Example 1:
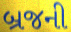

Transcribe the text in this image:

બ્રજની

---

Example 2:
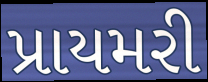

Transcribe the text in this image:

પ્રાયમરી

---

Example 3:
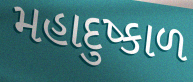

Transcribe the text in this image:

મહાદુષ્કાળ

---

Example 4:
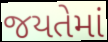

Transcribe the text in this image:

જયતેમાં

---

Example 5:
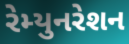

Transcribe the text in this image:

રેમ્યુનરેશન